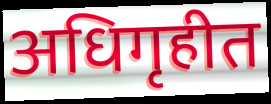
अधिगृहीत